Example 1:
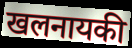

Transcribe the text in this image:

खलनायकी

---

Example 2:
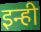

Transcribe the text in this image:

इन्ही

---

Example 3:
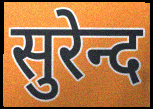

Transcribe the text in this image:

सुरेन्द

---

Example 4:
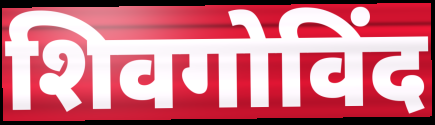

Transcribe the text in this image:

शिवगोविंद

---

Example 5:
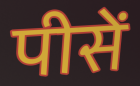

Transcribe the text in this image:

पीसें